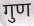
गुण